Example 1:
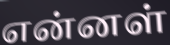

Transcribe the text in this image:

என்னள்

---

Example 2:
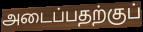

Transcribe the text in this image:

அடைப்பதற்குப்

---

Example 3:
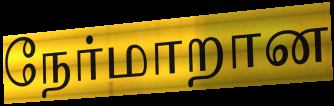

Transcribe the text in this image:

நேர்மாறான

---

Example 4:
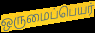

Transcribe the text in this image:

ஒருமைப்பெயர்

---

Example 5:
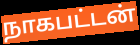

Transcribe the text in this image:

நாகபட்டன்